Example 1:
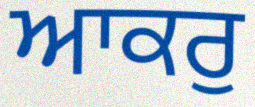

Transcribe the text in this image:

ਆਕਰੁ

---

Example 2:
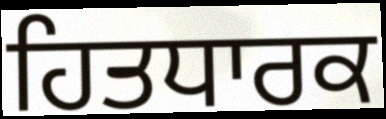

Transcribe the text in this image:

ਹਿਤਧਾਰਕ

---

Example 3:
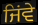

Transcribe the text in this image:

ਜਿਂਵੇ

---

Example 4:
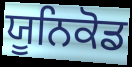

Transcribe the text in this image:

ਯੂਨਿਕੋਡ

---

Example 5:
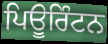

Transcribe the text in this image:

ਪਿਊਰਿੰਟਨ